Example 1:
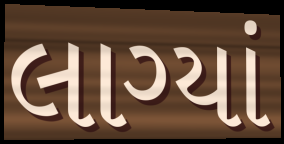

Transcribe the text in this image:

લાગ્યાં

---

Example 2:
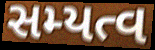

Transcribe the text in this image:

સમ્યત્વ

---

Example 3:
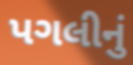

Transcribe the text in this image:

પગલીનું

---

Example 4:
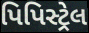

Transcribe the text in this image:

પિપિસ્ટ્રેલ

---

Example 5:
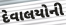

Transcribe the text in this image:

દેવાલયોની